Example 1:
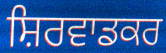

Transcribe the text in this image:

ਸ਼ਿਰਵਾਡਕਰ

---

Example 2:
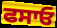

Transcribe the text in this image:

ਫਸਾਓ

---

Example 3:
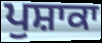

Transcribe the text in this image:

ਪੁਸ਼ਾਕਾ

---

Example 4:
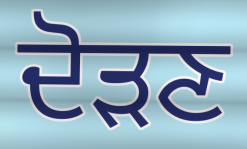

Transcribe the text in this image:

ਦੋੜਣ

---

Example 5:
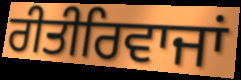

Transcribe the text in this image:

ਰੀਤੀਰਿਵਾਜਾਂ